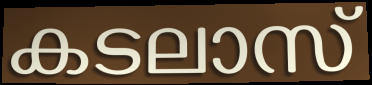
കടലാസ്